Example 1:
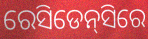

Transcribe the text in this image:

ରେସିଡେନ୍‌ସିରେ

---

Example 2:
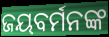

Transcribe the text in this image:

ଜୟବର୍ମନଙ୍କ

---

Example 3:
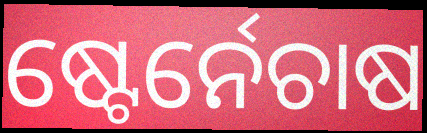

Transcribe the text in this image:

ଷ୍ଟେର୍ନେଚାଷ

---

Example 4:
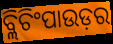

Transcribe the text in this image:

ବ୍ଲିଚିଂପାଉଡ଼ର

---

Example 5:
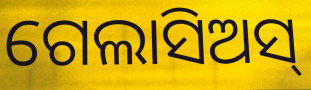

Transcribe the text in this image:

ଗେଲାସିଅସ୍